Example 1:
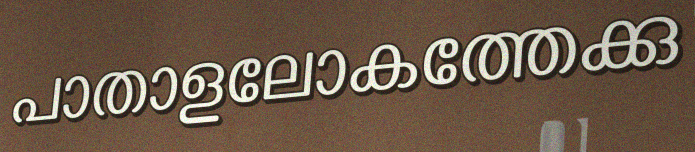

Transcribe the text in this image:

പാതാളലോകത്തേക്കു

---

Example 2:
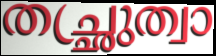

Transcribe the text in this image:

തച്ഛ്രുത്വാ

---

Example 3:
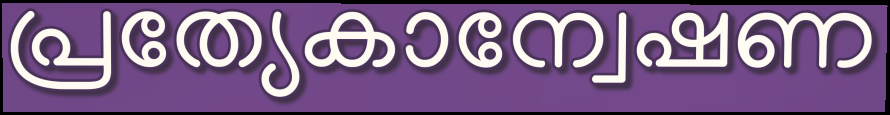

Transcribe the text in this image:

പ്രത്യേകാന്വേഷണ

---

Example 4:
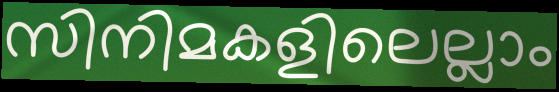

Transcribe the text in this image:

സിനിമകളിലെല്ലാം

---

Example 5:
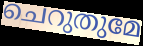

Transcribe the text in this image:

ചെറുതുമേ